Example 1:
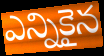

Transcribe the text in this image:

ఎన్నికైన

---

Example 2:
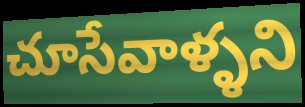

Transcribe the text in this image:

చూసేవాళ్ళని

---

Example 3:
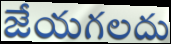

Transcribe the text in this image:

జేయగలదు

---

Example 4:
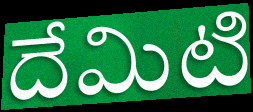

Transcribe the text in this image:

దేమిటి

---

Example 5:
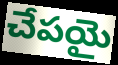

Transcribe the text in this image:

చేపయై